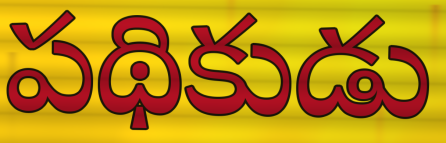
పథికుడు